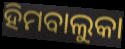
ହିମବାଲୁକା